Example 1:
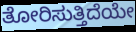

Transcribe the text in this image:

ತೋರಿಸುತ್ತಿದೆಯೇ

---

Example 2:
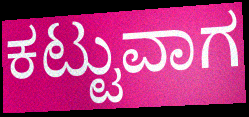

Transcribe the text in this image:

ಕಟ್ಟುವಾಗ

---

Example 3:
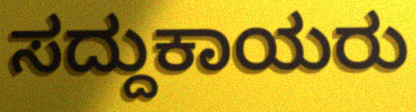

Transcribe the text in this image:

ಸದ್ದುಕಾಯರು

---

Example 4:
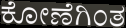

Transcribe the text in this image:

ಕೋಣೆಗಿಂತ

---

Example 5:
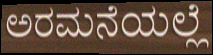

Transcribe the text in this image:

ಅರಮನೆಯಲ್ಲೆ